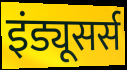
इंड्यूसर्स